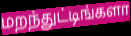
மறந்துட்டிங்களா